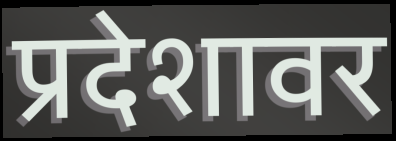
प्रदेशावर